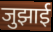
जुझाई